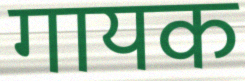
गायक